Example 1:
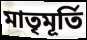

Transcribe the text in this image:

মাতৃমূর্তি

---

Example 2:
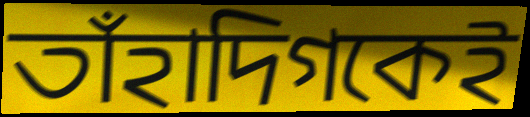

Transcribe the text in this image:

তাঁহাদিগকেই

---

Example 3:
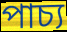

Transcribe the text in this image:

পাচ্য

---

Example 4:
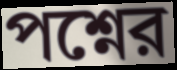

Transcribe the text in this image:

পশ্নের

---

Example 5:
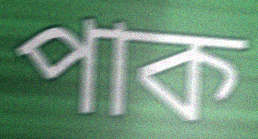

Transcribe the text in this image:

পাক